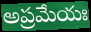
అప్రమేయః